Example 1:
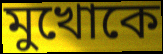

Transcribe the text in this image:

মুখোকে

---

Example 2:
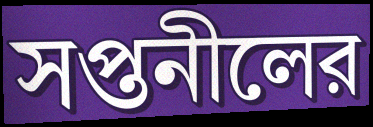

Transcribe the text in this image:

সপ্তনীলের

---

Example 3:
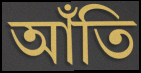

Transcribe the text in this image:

আঁতি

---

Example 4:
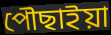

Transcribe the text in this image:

পৌছাইয়া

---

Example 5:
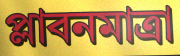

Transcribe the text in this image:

প্লাবনমাত্রা